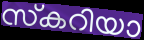
സ്‌കറിയാ